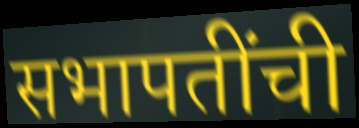
सभापतींची